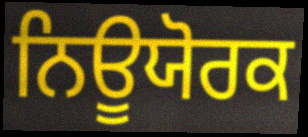
ਨਿਊਯੋਰਕ